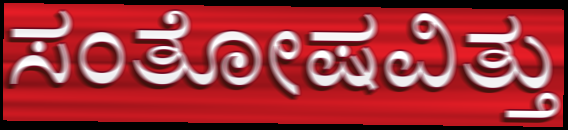
ಸಂತೋಷವಿತ್ತು